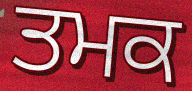
ਤਮਕ